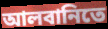
আলবানিতে